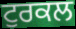
ਟੁਰਕਲ